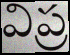
విప్ర